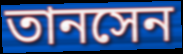
তানসেন